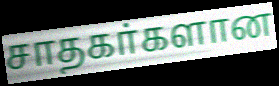
சாதகர்களான